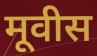
मूवीस